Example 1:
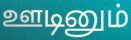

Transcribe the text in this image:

ஊடினும்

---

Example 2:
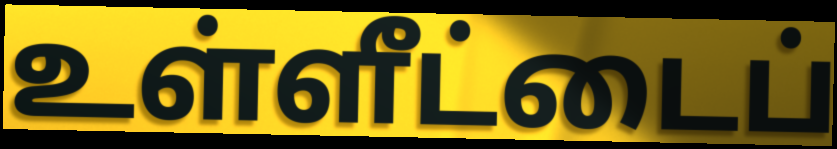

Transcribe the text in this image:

உள்ளீட்டைப்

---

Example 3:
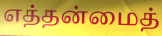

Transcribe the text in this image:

எத்தன்மைத்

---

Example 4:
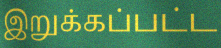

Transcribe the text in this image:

இறுக்கப்பட்ட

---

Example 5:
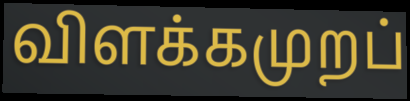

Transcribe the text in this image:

விளக்கமுறப்